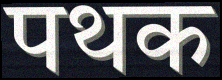
पथक